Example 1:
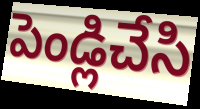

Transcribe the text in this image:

పెండ్లిచేసి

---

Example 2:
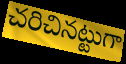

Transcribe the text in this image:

చరిచినట్టుగా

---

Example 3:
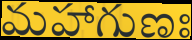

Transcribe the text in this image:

మహాగుణః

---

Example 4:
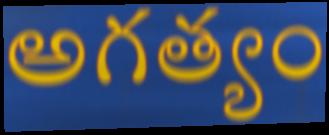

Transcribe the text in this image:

అగత్యం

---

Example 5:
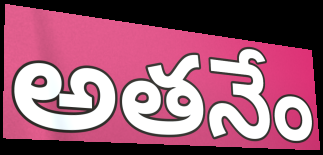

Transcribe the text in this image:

అతనేం